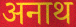
अनाथ